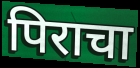
पिराचा